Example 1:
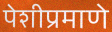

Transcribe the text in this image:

पेशीप्रमाणे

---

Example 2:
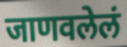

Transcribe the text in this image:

जाणवलेलं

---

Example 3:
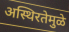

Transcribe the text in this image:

अस्थिरतेमुळे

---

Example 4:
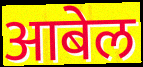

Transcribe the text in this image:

आबेल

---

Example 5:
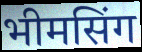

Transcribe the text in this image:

भीमसिंग